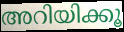
അറിയിക്കൂ